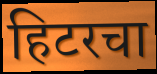
हिटरचा